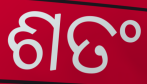
ଶତଂ